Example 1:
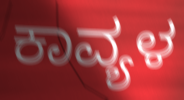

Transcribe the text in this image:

ಕಾವ್ಯಳ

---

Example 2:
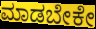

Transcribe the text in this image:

ಮಾಡಬೇಕೇ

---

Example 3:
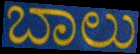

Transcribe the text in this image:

ಬಾಲು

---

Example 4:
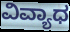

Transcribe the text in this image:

ವಿವ್ಯಾಧ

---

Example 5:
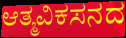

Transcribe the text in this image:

ಆತ್ಮವಿಕಸನದ